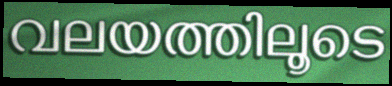
വലയത്തിലൂടെ